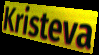
Kristeva